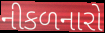
નીકળનારો